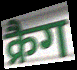
क्रैग